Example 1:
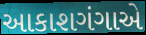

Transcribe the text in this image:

આકાશગંગાએ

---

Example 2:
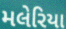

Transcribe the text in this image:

મલેરિયા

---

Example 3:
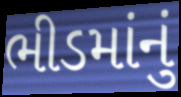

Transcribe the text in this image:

ભીડમાંનું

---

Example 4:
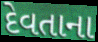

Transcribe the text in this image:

દેવતાના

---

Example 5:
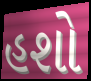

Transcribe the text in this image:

હશો